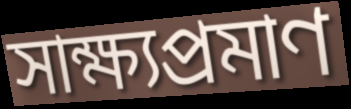
সাক্ষ্যপ্রমাণ